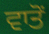
ਵਾਤੋਂ